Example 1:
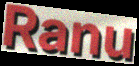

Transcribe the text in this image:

Ranu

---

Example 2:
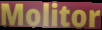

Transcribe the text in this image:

Molitor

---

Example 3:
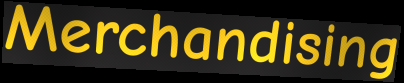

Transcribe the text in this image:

Merchandising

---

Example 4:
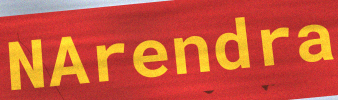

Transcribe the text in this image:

NArendra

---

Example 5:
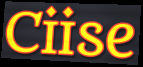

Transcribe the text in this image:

Ciise